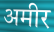
अमीर